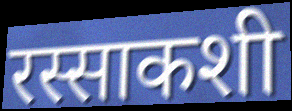
रस्साकशी